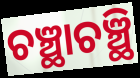
ଚଞ୍ଛାଚଞ୍ଛି